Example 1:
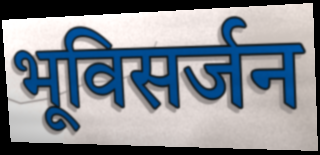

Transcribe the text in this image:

भूविसर्जन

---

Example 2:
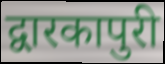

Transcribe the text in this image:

द्वारकापुरी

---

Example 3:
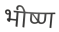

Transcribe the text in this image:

भीष्ण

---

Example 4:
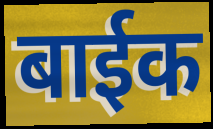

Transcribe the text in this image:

बाईक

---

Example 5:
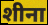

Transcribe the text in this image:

शीना